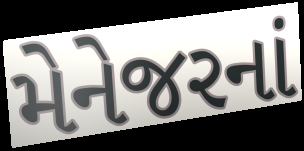
મેનેજરનાં